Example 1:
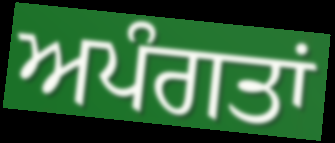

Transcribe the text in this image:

ਅਪੰਗਤਾਂ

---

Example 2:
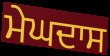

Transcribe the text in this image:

ਮੇਘਦਾਸ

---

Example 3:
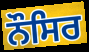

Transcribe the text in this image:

ਨੌਸਿਰ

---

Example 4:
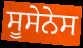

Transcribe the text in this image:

ਸੂਸੇਨੇਸ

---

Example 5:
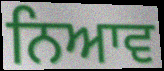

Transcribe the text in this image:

ਨਿਆਵ